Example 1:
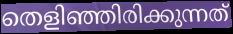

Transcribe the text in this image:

തെളിഞ്ഞിരിക്കുന്നത്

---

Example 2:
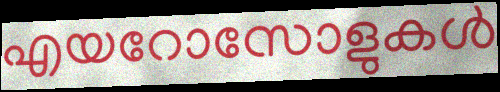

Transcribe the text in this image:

എയറോസോളുകൾ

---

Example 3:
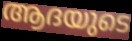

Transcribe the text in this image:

ആദയുടെ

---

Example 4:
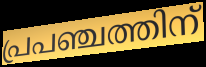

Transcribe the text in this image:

പ്രപഞ്ചത്തിന്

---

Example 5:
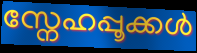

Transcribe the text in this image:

സ്നേഹപ്പൂക്കൾ